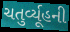
ચતુર્વ્યૂહની